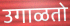
उगाळतो